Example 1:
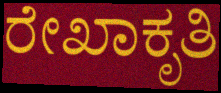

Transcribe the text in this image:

ರೇಖಾಕೃತಿ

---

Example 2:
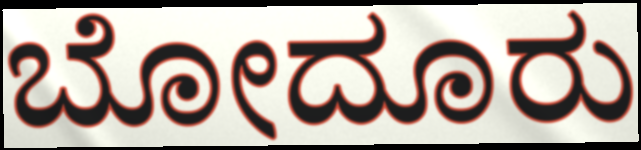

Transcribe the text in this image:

ಬೋದೂರು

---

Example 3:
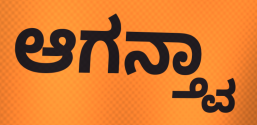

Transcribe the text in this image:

ಆಗನ್ತ್ವಾ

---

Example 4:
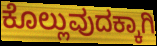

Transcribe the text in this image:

ಕೊಲ್ಲುವುದಕ್ಕಾಗಿ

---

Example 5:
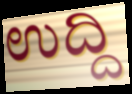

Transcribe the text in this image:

ಉದ್ದಿ